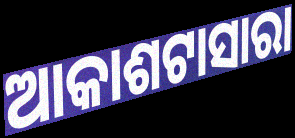
ଆକାଶଟାସାରା